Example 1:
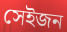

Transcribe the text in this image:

সেইজন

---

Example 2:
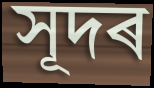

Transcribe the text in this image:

সূদৰ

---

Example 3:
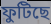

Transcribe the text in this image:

ফুটিছে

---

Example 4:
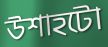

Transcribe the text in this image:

উশাহটো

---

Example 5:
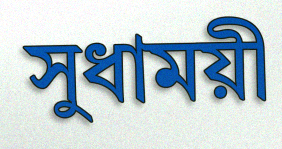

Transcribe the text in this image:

সুধাময়ী